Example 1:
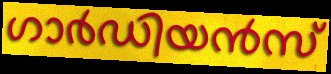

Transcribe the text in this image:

ഗാർഡിയൻസ്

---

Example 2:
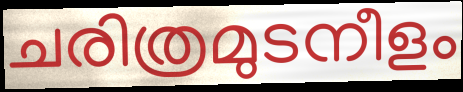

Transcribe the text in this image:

ചരിത്രമുടനീളം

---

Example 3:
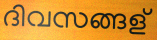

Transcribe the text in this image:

ദിവസങ്ങള്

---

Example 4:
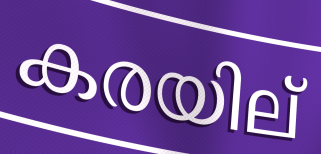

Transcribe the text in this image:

കരയില്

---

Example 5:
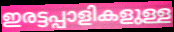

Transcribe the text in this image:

ഇരട്ടപ്പാളികളുള്ള